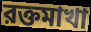
রক্তমাখা